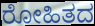
ರೋಹಿತದ